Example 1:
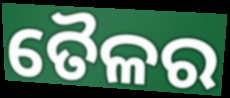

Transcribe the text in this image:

ତୈଳର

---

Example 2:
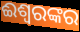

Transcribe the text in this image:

ଈଶ୍ୱରଙ୍କର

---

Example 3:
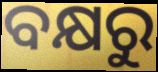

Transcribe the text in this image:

ବକ୍ଷରୁ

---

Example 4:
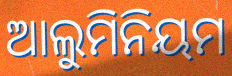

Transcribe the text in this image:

ଆଲୁମିନିୟମ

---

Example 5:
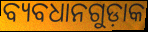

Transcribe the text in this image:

ବ୍ୟବଧାନଗୁଡ଼ାକ